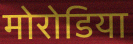
मोरोडिया